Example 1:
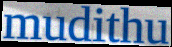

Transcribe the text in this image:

mudithu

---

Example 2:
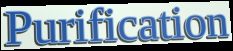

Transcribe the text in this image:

Purification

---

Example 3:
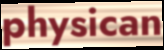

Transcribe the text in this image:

physican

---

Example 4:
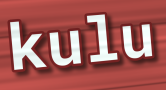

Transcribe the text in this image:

kulu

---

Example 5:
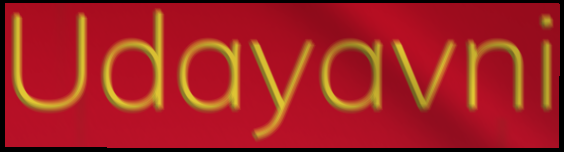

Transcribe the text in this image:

Udayavni